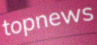
topnews